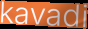
kavadi